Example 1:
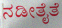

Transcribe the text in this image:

ನಡೀತೈತೆ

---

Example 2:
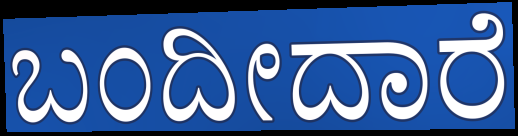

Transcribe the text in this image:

ಬಂದೀದಾರೆ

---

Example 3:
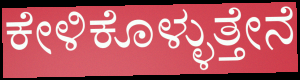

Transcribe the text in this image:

ಕೇಳಿಕೊಳ್ಳುತ್ತೇನೆ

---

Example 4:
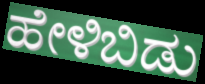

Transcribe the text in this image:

ಹೇಳಿಬಿಡು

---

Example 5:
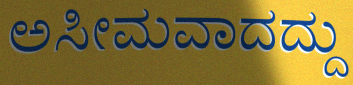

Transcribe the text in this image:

ಅಸೀಮವಾದದ್ದು